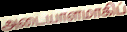
அடையாளமாகிப்